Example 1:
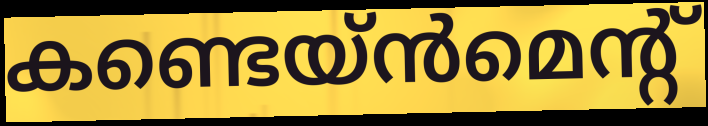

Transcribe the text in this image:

കണ്ടെയ്ൻമെന്റ്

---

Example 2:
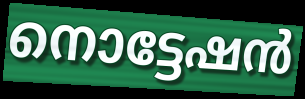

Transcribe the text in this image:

നൊട്ടേഷൻ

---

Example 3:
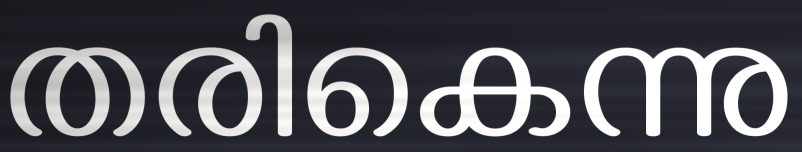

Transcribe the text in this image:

തരികെന്നു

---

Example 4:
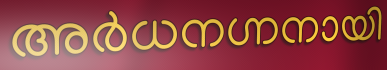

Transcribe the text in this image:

അർധനഗ്നനായി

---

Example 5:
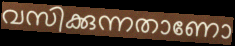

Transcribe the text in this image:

വസിക്കുന്നതാണോ